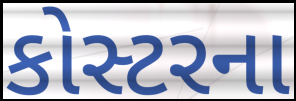
કોસ્ટરના